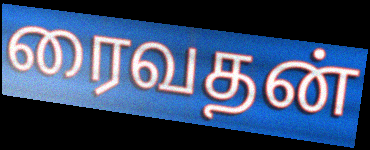
ரைவதன்